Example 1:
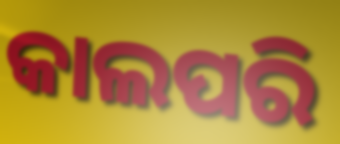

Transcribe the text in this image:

କାଲପରି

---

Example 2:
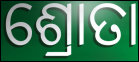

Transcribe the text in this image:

ଶ୍ରୋତା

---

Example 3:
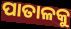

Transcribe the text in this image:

ପାତାଳକୁ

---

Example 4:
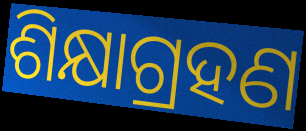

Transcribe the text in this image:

ଶିକ୍ଷାଗ୍ରହଣ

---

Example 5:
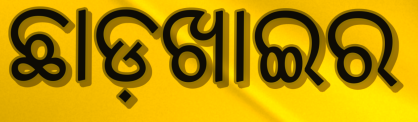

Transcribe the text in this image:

ଛାଡ଼ଖାଇର